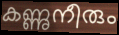
കണ്ണുനീരും